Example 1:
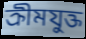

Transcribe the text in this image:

ক্ৰীমযুক্ত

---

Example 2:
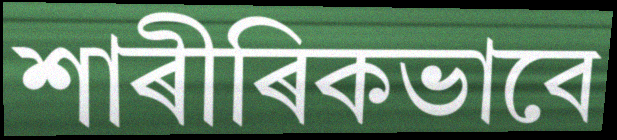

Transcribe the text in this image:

শাৰীৰিকভাবে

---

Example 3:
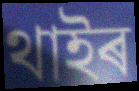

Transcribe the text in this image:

থাইৰ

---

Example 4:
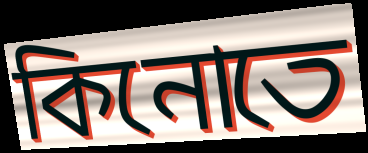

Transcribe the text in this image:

কিনোতে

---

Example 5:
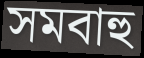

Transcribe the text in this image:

সমবাহু